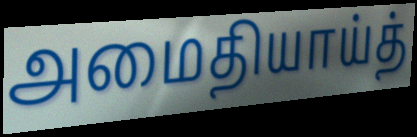
அமைதியாய்த்